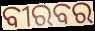
ବୀରବର